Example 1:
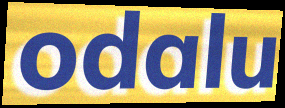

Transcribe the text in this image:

odalu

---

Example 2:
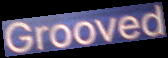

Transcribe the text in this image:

Grooved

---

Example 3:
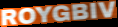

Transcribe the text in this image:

ROYGBIV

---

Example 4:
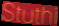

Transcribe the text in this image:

Stuthi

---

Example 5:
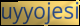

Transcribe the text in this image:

uyyojesi